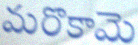
మరొకామె